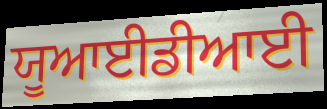
ਯੂਆਈਡੀਆਈ